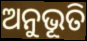
ଅନୁଭୂତି